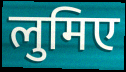
लुमिए